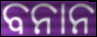
ବନାନ